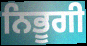
ਨਿਭੂਗੀ